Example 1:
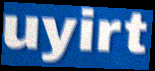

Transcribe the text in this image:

uyirt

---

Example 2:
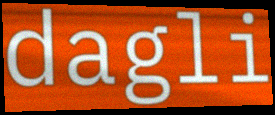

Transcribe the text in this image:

dagli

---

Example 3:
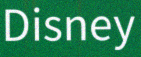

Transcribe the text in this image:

Disney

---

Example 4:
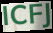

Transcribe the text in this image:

ICFJ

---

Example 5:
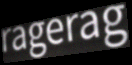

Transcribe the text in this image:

ragerag